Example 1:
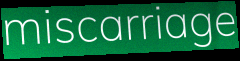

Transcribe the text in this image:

miscarriage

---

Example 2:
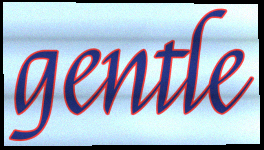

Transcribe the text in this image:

gentle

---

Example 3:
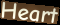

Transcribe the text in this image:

Heart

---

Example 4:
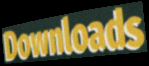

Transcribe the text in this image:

Downloads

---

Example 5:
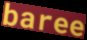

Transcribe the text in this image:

baree